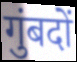
गुंबदों